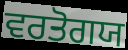
ਵਰਤੋਗਯ